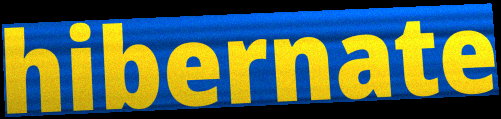
hibernate